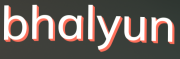
bhalyun